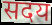
सदय